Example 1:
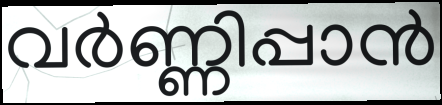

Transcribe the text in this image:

വർണ്ണിപ്പാൻ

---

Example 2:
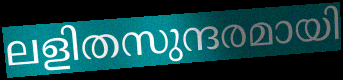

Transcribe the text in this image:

ലളിതസുന്ദരമായി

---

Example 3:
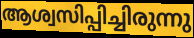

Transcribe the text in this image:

ആശ്വസിപ്പിച്ചിരുന്നു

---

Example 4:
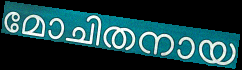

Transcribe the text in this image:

മോചിതനായ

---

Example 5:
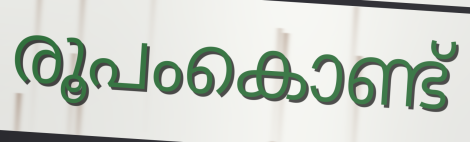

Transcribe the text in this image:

രൂപംകൊണ്ട്